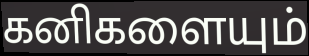
கனிகளையும்